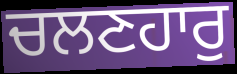
ਚਲਣਹਾਰੁ